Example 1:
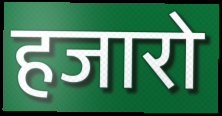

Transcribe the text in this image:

हजारो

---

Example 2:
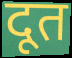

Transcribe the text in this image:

दूत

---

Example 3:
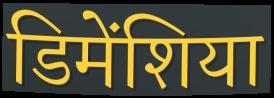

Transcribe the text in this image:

डिमेंशिया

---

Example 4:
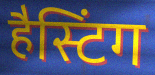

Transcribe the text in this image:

हैस्टिंग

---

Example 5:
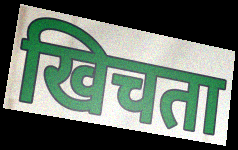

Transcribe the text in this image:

खिचता